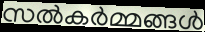
സൽകർമ്മങ്ങൾ